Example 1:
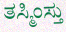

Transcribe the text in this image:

ತಸ್ಮಿಂಸ್ತು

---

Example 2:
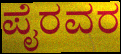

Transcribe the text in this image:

ಪೈರವರ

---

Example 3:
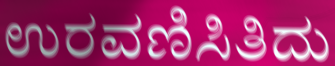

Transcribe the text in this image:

ಉರವಣಿಸಿತಿದು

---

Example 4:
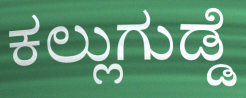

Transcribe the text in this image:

ಕಲ್ಲುಗುಡ್ಡೆ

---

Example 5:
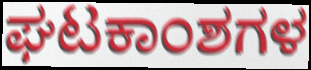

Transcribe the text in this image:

ಘಟಕಾಂಶಗಳ